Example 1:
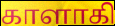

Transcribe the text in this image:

காளாகி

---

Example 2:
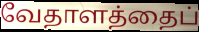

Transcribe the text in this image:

வேதாளத்தைப்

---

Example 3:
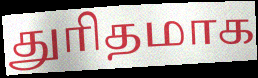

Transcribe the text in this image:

துரிதமாக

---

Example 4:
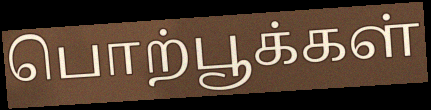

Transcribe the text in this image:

பொற்பூக்கள்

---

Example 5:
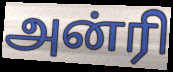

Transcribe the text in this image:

அன்ரி